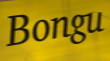
Bongu